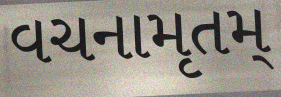
વચનામૃતમ્